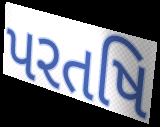
પરતષિ